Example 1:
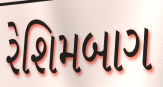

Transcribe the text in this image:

રેશિમબાગ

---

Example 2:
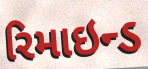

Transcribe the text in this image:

રિમાઇન્ડ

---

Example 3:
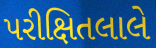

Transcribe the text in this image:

પરીક્ષિતલાલે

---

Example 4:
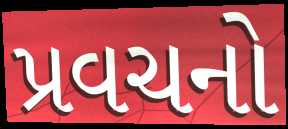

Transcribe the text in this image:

પ્રવચનો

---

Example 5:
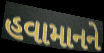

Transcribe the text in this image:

હવામાનને